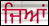
ਜਿਆਂ